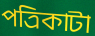
পত্রিকাটা